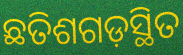
ଛତିଶଗଡ଼ସ୍ଥିତ